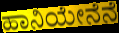
ಹಾನಿಯೇನೆನೆ